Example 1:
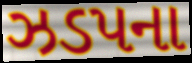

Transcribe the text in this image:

ઝડપના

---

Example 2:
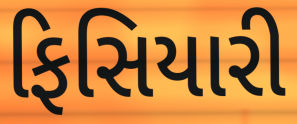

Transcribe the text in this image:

ફિસિયારી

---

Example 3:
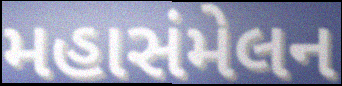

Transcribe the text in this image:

મહાસંમેલન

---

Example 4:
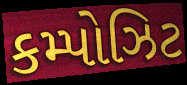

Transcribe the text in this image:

કમ્પોઝિટ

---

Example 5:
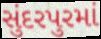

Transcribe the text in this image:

સુંદરપુરમાં